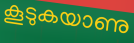
കൂടുകയാണു